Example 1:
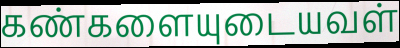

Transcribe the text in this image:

கண்களையுடையவள்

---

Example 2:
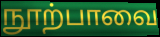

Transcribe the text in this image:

நூற்பாவை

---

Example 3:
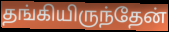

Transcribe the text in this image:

தங்கியிருந்தேன்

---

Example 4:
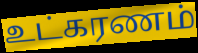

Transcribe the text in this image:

உட்கரணம்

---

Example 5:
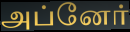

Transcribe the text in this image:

அப்னேர்